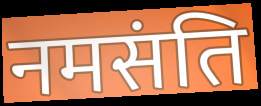
नमसंति